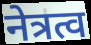
नेत्रत्व